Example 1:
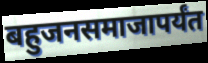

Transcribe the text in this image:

बहुजनसमाजापर्यंत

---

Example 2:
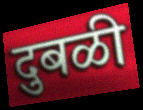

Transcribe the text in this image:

दुबळी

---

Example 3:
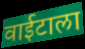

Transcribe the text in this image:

वाईटाला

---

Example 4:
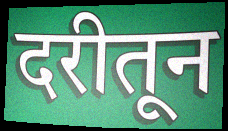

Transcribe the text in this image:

दरीतून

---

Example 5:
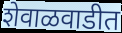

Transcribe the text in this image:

शेवाळवाडीत